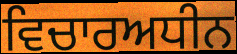
ਵਿਚਾਰਅਧੀਨ